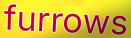
furrows